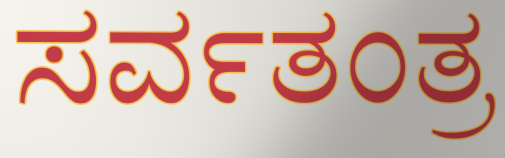
ಸರ್ವತಂತ್ರ